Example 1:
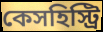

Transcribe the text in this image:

কেসহিস্ট্রি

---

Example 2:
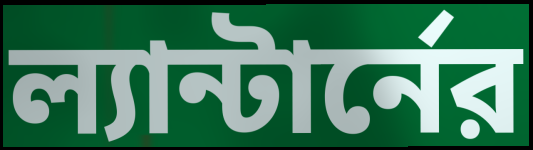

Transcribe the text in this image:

ল্যান্টার্নের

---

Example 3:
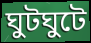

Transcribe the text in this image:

ঘুটঘুটে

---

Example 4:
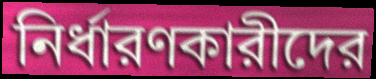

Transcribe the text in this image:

নির্ধারণকারীদের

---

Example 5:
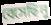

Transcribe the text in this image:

বেসেছিনু